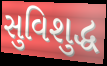
સુવિશુદ્ધ